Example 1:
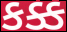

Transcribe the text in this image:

કક્ક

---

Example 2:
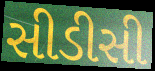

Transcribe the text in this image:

સીડીસી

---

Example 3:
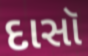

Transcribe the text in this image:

દાસૉ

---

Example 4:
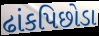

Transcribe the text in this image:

ઢાંકપિછોડા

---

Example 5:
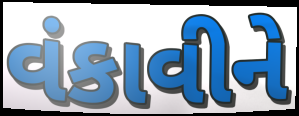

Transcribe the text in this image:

વંકાવીને